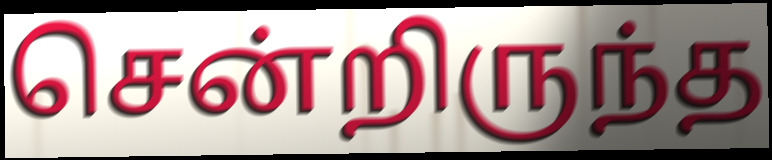
சென்றிருந்த